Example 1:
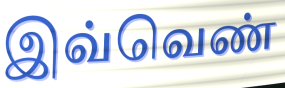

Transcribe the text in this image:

இவ்வெண்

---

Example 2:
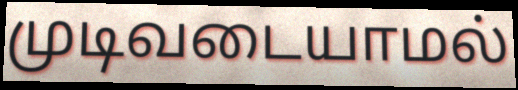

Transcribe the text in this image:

முடிவடையாமல்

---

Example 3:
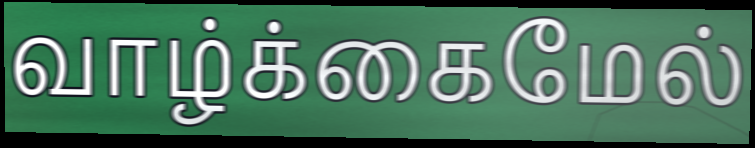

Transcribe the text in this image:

வாழ்க்கைமேல்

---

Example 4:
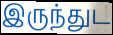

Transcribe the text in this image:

இருந்துட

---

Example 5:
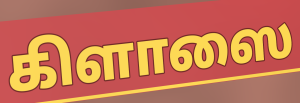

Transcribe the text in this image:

கிளாஸை